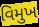
વિમુખ